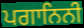
ਪਗਾਨਿਨੀ